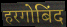
हरगोबिंद